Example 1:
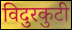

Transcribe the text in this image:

विदुरकुटी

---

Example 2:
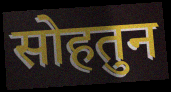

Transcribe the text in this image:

सोहतुन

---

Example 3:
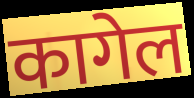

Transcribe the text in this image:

कागेल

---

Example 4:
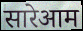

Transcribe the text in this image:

सारेआम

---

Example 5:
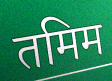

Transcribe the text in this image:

तमिम